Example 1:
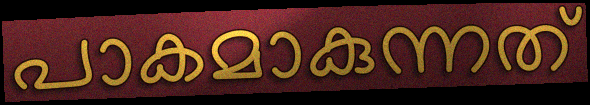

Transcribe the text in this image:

പാകമാകുന്നത്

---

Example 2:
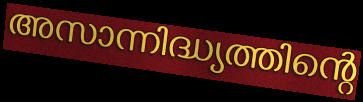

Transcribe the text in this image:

അസാന്നിദ്ധ്യത്തിന്റെ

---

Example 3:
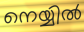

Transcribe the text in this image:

നെയ്യിൽ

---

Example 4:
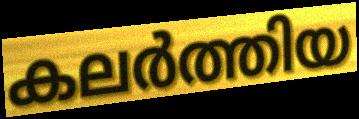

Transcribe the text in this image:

കലർത്തിയ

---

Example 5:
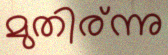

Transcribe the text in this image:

മുതിര്ന്നു